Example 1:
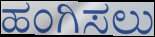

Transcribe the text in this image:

ಹಂಗಿಸಲು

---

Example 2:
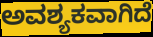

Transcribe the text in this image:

ಅವಶ್ಯಕವಾಗಿದೆ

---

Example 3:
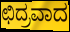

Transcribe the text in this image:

ಛಿದ್ರವಾದ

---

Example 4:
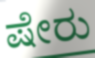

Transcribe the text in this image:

ಷೇರು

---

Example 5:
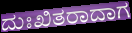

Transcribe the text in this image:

ದುಃಖಿತರಾದಾಗ